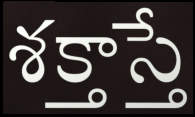
శక్తాస్తే